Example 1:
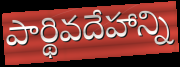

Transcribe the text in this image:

పార్థివదేహాన్ని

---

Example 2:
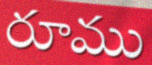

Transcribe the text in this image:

రూము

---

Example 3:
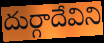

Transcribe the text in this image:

దుర్గాదేవిని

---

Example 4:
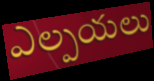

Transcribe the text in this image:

ఎల్పయలు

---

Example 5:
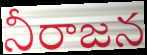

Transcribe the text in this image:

నీరాజన